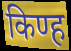
किण्ह